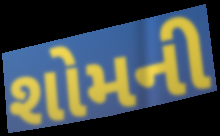
શોમની